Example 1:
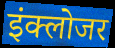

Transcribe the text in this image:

इंक्लोजर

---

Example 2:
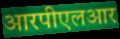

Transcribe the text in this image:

आरपीएलआर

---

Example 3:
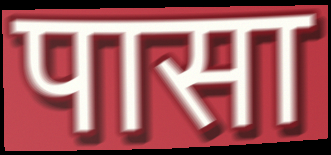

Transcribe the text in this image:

पासा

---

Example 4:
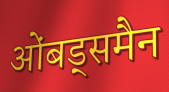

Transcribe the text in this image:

ओंबड्समैन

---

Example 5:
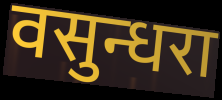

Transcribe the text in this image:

वसुन्धरा